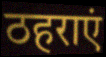
ठहराएं